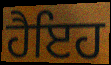
ਹੈਇਹ